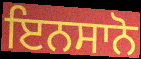
ਇਨਸਾਨੋ